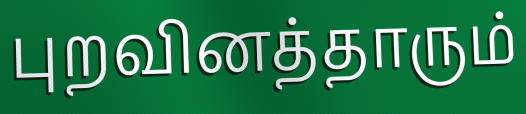
புறவினத்தாரும்